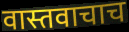
वास्तवाचाच